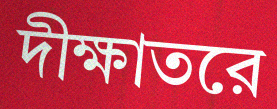
দীক্ষাতরে